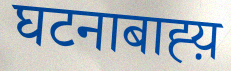
घटनाबाह्य़